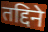
तद्दिने